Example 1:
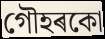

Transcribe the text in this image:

গৌহৰকো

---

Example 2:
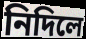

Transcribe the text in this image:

নিদিলে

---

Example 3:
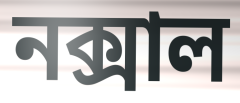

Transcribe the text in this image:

নক্সাল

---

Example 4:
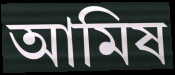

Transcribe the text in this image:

আমিষ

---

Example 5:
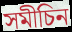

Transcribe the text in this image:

সমীচিন